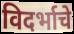
विदर्भाचे